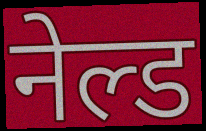
नेल्ड